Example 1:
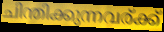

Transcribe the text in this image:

ചിന്തിക്കുന്നവര്ക്ക്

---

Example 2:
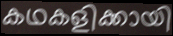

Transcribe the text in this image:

കഥകളിക്കായി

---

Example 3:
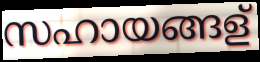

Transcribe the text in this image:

സഹായങ്ങള്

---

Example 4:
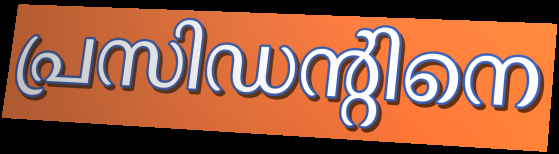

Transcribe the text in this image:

പ്രസിഡന്റിനെ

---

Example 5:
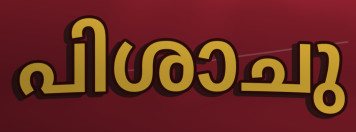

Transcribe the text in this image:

പിശാചു